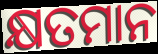
କ୍ଷତମାନ